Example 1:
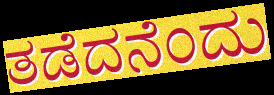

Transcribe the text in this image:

ತಡೆದನೆಂದು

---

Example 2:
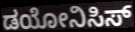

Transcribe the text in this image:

ಡಯೋನಿಸಿಸ್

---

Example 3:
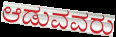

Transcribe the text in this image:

ಆಡುವವರು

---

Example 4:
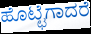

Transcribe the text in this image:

ಹೊಟ್ಟೆಗಾದರೆ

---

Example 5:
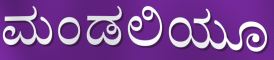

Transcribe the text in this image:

ಮಂಡಲಿಯೂ